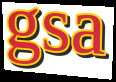
gsa